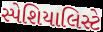
સ્પેશિયાલિસ્ટે